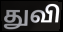
துவி